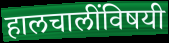
हालचालींविषयी